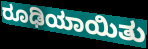
ರೂಢಿಯಾಯಿತು